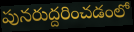
పునరుద్దరించడంలో